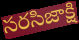
సరసిజాక్షి